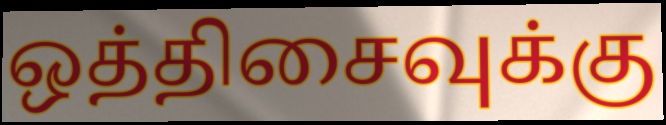
ஒத்திசைவுக்கு